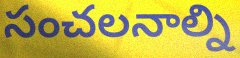
సంచలనాల్ని